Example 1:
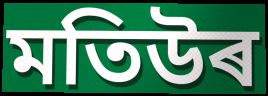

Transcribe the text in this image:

মতিউৰ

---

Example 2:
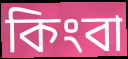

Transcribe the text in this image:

কিংবা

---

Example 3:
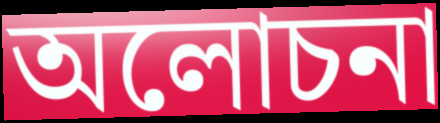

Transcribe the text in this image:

অলোচনা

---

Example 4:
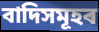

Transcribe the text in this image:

বাদিসমূহৰ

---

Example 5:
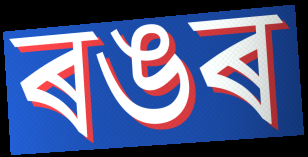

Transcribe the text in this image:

ৰঙৰ